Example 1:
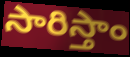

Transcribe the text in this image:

సారిస్తాం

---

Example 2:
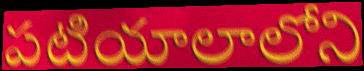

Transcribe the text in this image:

పటియాలాలోని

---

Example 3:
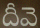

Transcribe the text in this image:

దీవె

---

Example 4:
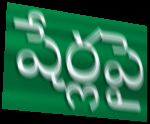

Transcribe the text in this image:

షేర్లపై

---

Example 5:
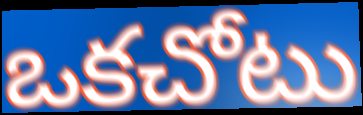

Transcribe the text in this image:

ఒకచోటు